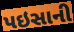
પઇસાની